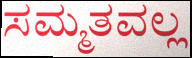
ಸಮ್ಮತವಲ್ಲ